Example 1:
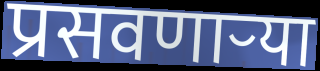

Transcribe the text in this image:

प्रसवणाऱ्या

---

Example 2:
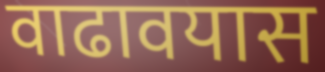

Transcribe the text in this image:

वाढावयास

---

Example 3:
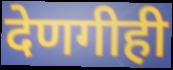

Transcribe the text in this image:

देणगीही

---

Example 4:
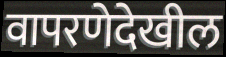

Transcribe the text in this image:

वापरणेदेखील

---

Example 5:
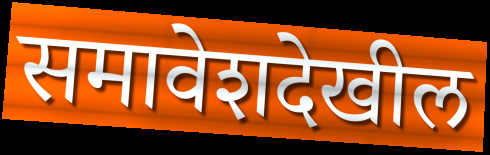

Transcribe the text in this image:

समावेशदेखील